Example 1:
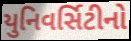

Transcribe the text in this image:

યુનિવર્સિટીનો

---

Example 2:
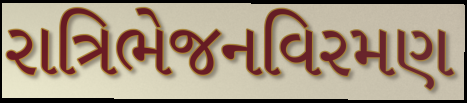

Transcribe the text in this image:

રાત્રિભેજનવિરમણ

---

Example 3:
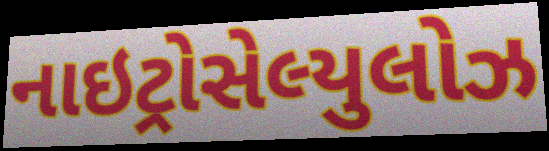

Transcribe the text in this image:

નાઇટ્રોસેલ્યુલોઝ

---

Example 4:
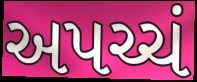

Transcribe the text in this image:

અપચ્ચં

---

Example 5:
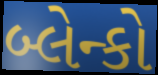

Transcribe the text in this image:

બ્લેન્કો